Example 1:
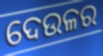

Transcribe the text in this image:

ଦେଉଳର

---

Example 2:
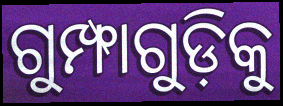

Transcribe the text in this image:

ଗୁମ୍ଫାଗୁଡ଼ିକୁ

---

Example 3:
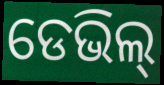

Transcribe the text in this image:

ଡେଭିଲ୍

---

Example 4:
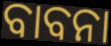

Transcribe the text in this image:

ବାବନା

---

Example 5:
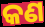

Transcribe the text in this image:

କଣ